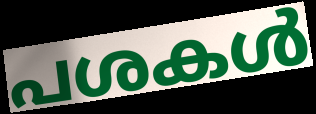
പശകൾ